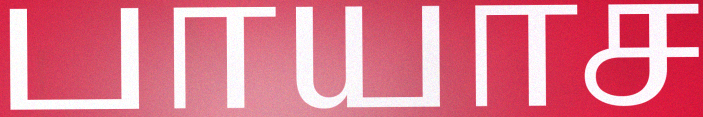
பாயாச